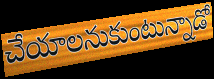
చేయాలనుకుంటున్నాడో